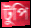
টুপি